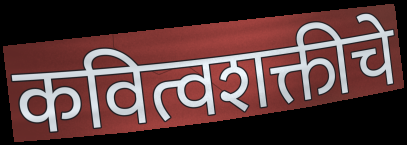
कवित्वशक्तीचे